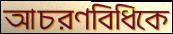
আচরণবিধিকে